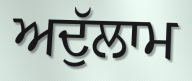
ਅਦੁੱਲਾਮ